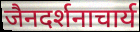
जैनदर्शनाचार्य